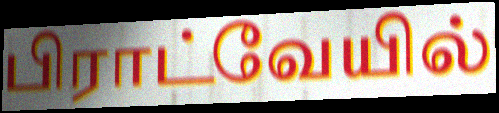
பிராட்வேயில்